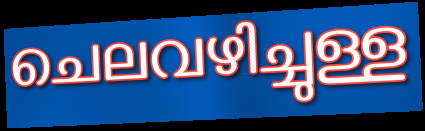
ചെലവഴിച്ചുള്ള